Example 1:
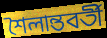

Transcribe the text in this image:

শৈলান্তবর্তী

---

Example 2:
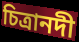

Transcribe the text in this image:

চিত্রানদী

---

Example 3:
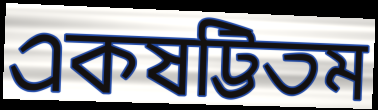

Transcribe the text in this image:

একষট্টিতম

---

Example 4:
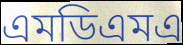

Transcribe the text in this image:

এমডিএমএ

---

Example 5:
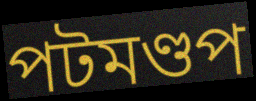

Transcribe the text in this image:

পটমণ্ডপ